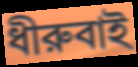
ধীরুবাই